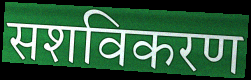
सशविकरण